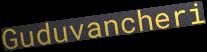
Guduvancheri